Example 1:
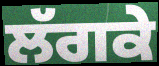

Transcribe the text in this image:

ਲੱਗਕੇ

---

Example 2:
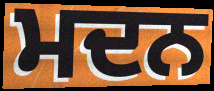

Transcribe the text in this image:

ਮਦਨ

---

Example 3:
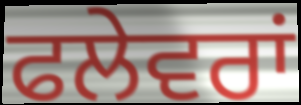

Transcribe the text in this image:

ਫਲੇਵਰਾਂ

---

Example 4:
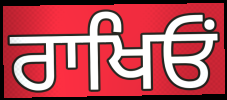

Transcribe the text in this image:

ਰਾਖਿਓਂ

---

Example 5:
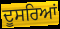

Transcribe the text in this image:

ਦੂਸਰਿਆਂ